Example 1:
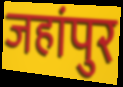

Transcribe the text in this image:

जहांपुर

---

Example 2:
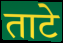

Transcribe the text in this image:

ताटे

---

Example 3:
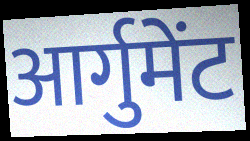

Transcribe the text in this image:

आर्गुमेंट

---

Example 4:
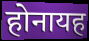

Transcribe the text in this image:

होनायह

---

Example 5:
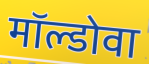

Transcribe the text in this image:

मॉल्डोवा